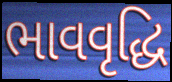
ભાવવૃદ્ધિ